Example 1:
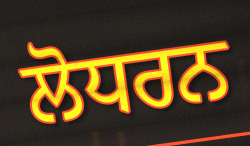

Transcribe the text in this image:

ਲੋਧਰਨ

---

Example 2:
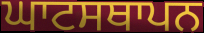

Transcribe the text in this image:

ਘਾਟਸਥਾਪਨ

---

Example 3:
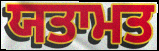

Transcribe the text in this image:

ਯਤਾਮਤ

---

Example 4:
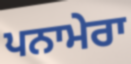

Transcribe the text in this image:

ਪਨਾਮੇਰਾ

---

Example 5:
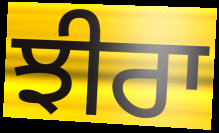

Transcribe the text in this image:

ਝੀਰਾ